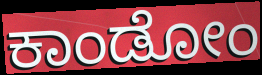
ಕಾಂಡೋಂ